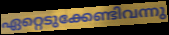
ഏറ്റെടുക്കേണ്ടിവന്നു